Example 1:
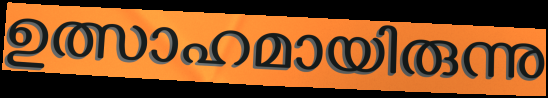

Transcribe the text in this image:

ഉത്സാഹമായിരുന്നു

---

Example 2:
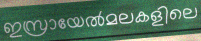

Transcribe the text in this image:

ഇസ്രായേൽമലകളിലെ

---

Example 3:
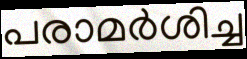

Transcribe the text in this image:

പരാമർശിച്ച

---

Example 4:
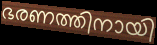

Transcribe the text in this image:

ഭരണത്തിനായി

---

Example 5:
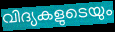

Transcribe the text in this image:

വിദ്യകളുടെയും